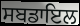
ਸਬਡਾਇਲ